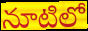
నూటిలో